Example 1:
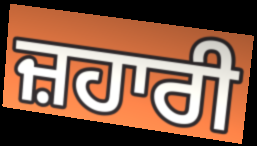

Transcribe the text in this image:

ਜ਼ਹਾਰੀ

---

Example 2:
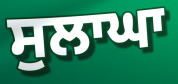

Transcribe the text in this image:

ਸੁਲਾਘਾ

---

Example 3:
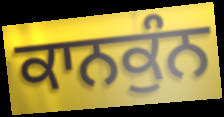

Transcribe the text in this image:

ਕਾਨਕੁੰਨ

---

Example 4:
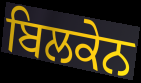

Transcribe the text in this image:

ਬਿਲਕੇਨ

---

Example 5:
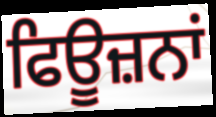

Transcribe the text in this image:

ਫਿਊਜ਼ਨਾਂ